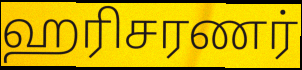
ஹரிசரணர்